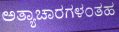
ಅತ್ಯಾಚಾರಗಳಂತಹ